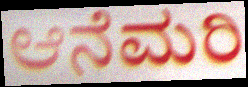
ಆನೆಮರಿ